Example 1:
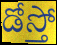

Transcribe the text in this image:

డోస్తో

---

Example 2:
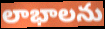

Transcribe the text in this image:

లాభాలను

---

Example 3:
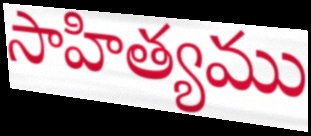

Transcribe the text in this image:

సాహిత్యము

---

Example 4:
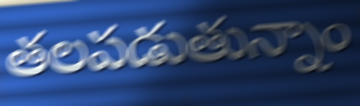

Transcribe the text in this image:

తలపడుతున్నాం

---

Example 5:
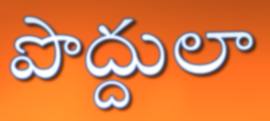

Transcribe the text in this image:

పొద్దులా